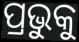
ପ୍ରଭୁକୁ